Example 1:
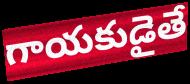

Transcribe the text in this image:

గాయకుడైతే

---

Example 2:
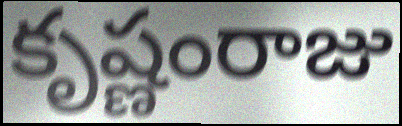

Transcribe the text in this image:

కృష్ణంరాజు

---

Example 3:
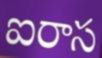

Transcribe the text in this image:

ఐరాస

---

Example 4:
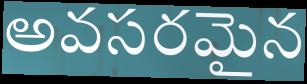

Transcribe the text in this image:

అవసరమైన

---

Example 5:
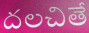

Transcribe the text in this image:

దలచితే